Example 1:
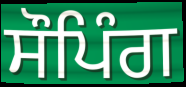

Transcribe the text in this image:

ਸੌਪਿੰਗ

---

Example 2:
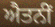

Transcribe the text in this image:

ਐਤਨੀਂ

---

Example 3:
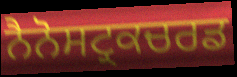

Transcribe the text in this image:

ਨੈਨੋਸਟ੍ਰਕਚਰਡ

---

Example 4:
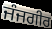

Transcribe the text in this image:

ਜੰਜਗੀਰ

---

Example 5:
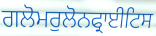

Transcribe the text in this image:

ਗਲੋਮਰੁਲੋਨਫ੍ਰਾਈਟਿਸ